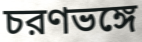
চরণভঙ্গে